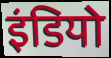
इंडियो